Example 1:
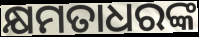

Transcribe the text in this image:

କ୍ଷମତାଧରଙ୍କ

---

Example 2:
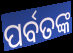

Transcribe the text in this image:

ପର୍ବତଙ୍କ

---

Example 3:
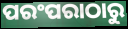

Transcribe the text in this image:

ପରଂପରାଠାରୁ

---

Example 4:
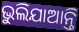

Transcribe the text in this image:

ଭୁଲିଯାଆନ୍ତି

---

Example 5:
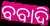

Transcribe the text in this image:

ବବାଦି